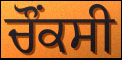
ਚੌਂਕਸੀ